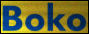
Boko